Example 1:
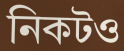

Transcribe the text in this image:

নিকটও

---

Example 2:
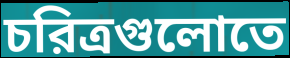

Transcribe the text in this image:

চরিত্রগুলোতে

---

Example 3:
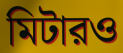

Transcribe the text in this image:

মিটারও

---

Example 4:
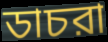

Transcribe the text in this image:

ডাচরা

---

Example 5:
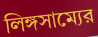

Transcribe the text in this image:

লিঙ্গসাম্যের